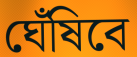
ঘেঁষিবে